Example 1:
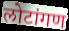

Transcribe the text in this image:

लोटांगण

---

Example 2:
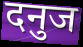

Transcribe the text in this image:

दनुज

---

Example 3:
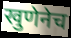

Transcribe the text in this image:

खुणेनेच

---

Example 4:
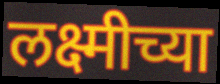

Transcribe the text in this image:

लक्ष्मीच्या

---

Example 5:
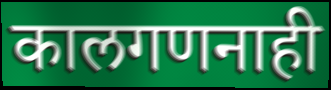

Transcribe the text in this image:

कालगणनाही